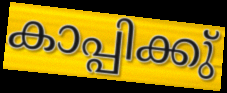
കാപ്പിക്കു്